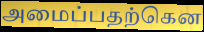
அமைப்பதற்கென